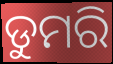
ଡୁମରି